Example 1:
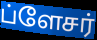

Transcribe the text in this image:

ப்ளேசர்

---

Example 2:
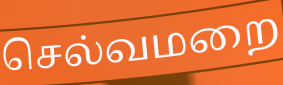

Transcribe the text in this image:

செல்வமறை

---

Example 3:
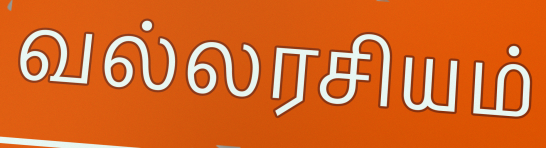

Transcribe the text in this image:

வல்லரசியம்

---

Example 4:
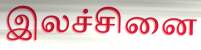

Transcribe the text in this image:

இலச்சினை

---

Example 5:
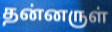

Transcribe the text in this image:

தன்னருள்